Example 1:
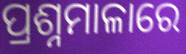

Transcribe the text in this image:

ପ୍ରଶ୍ନମାଳାରେ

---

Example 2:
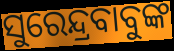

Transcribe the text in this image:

ସୁରେନ୍ଦ୍ରବାବୁଙ୍କ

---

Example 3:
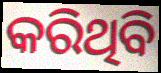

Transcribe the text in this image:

କରିଥିବି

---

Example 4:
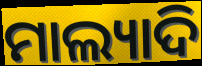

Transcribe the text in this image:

ମାଲ୍ୟାଦି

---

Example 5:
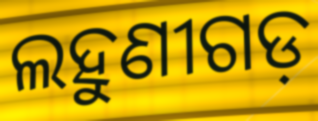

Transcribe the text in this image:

ଲହୁଣୀଗଡ଼